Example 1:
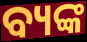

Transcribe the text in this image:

ବ୍ୟଙ୍କ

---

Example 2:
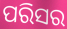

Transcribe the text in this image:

ପରିସର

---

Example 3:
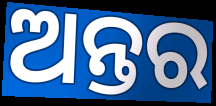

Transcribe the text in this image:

ଅନ୍ତର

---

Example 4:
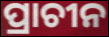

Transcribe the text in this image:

ପ୍ରାଚୀନ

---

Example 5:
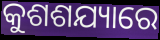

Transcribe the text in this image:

କୁଶଶଯ୍ୟାରେ